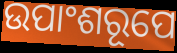
ଉପାଂଶରୂପେ